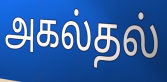
அகல்தல்